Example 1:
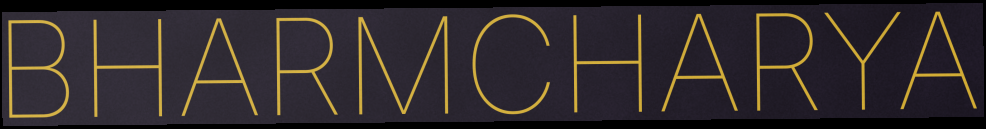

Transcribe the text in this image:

BHARMCHARYA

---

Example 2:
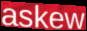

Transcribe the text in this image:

askew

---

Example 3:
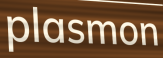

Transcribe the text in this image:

plasmon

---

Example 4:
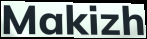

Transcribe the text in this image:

Makizh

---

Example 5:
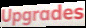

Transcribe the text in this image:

Upgrades